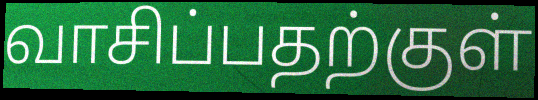
வாசிப்பதற்குள்